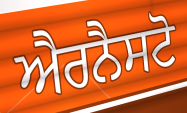
ਐਰਨੈਸਟੋ